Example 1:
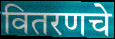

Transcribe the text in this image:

वितरणचे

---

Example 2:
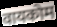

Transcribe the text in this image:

वायकोम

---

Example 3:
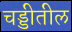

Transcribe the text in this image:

चड्डीतील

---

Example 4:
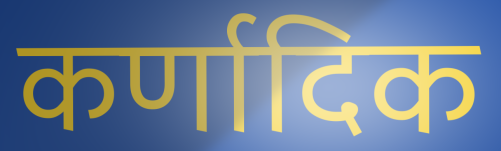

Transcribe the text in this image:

कर्णादिक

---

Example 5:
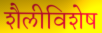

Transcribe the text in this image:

शैलीविशेष